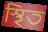
স্থিত